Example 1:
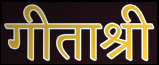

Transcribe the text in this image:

गीताश्री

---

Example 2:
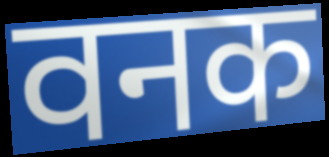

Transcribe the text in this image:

वनक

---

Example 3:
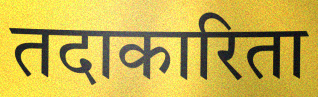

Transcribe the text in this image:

तदाकारिता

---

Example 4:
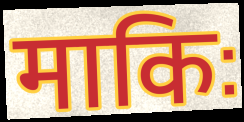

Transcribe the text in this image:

माकिः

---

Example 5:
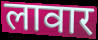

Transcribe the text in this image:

लावार